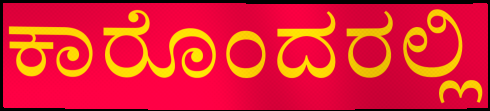
ಕಾರೊಂದರಲ್ಲಿ